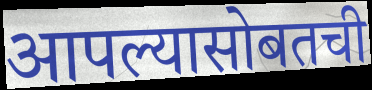
आपल्यासोबतची